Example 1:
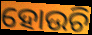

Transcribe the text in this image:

ହୋଉଚି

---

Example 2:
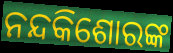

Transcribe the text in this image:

ନନ୍ଦକିଶୋରଙ୍କ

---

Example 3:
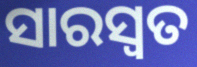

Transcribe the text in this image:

ସାରସ୍ବତ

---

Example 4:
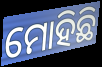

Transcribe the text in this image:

ମୋହିଛି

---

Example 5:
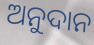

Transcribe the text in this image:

ଅନୁଦାନ